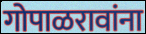
गोपाळरावांना